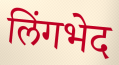
लिंगभेद